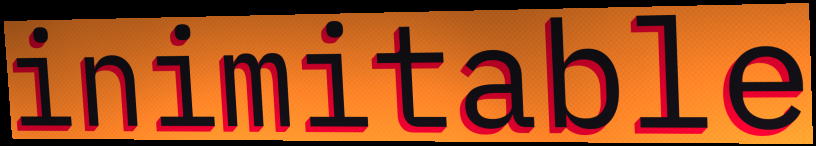
inimitable